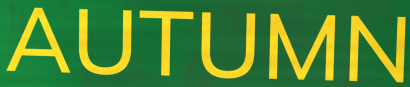
AUTUMN